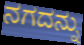
ನಗದನ್ನು